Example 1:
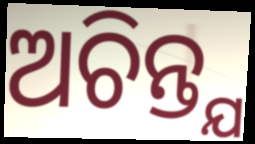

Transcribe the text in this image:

ଅଚିନ୍ତ୍ଯ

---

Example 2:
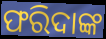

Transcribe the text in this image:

ଫରିଦାଙ୍କ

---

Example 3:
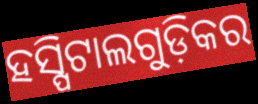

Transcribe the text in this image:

ହସ୍ପିଟାଲଗୁଡ଼ିକର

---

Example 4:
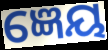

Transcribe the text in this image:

ଜ୍ଞେୟ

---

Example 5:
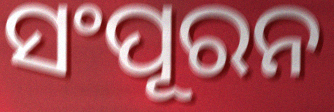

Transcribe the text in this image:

ସଂପୂରନ